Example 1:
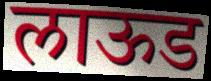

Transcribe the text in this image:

लाऊड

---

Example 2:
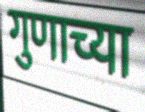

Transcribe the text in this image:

गुणाच्या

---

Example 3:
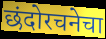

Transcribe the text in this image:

छंदोरचनेचा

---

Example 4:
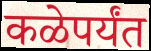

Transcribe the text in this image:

कळेपर्यंत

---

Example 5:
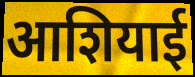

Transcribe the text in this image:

आशियाई